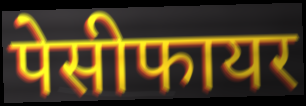
पेसीफायर